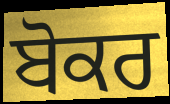
ਬੋਕਰ